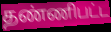
தண்ணிபட்ட